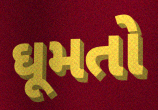
ઘૂમતો